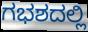
ಗಭಶದಲ್ಲಿ